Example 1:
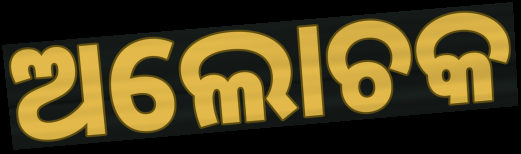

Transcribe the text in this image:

ଅଲୋଚକ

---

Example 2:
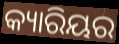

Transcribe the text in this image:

କ୍ୟାରିୟର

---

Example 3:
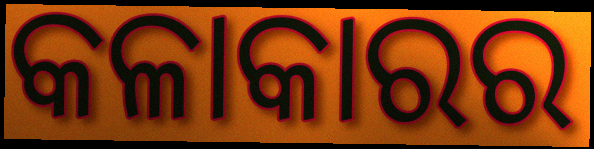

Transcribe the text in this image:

କଳାକାରର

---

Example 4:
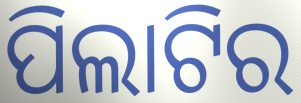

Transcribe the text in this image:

ପିଲାଟିର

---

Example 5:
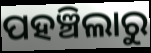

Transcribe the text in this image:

ପହଞ୍ଚିଲାରୁ